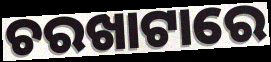
ଚରଖାଟାରେ